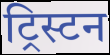
ट्रिस्टन